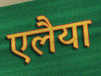
एलैया